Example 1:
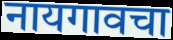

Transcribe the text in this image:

नायगावचा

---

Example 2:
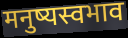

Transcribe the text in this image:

मनुष्यस्वभाव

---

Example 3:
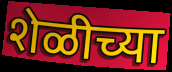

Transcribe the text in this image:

शेळीच्या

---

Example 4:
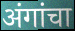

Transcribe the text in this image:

अंगांचा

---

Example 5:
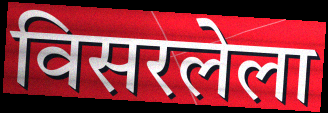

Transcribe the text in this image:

विसरलेला